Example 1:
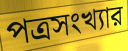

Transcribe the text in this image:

পত্রসংখ্যার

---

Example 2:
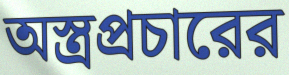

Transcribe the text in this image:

অস্ত্রপ্রচারের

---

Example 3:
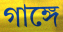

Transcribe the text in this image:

গাঙ্গে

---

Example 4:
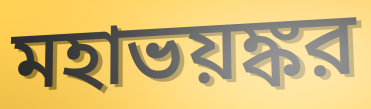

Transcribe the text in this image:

মহাভয়ঙ্কর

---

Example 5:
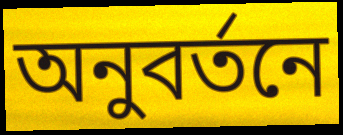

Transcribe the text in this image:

অনুবর্তনে